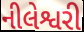
નીલેશ્વરી